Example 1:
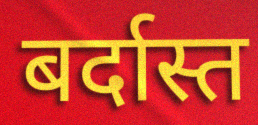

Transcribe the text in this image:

बर्दास्त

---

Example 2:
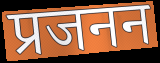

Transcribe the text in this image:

प्रजनन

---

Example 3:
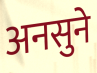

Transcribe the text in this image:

अनसुने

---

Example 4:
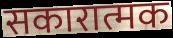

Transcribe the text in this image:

सकारात्‍मक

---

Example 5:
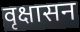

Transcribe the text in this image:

वृक्षासन